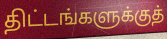
திட்டங்களுக்குத்